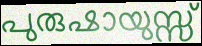
പുരുഷായുസ്സ്